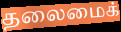
தலைமைக்